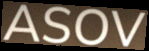
ASOV